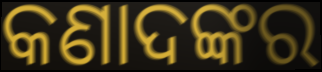
କଣାଦଙ୍କର